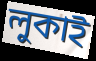
লুকাই